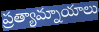
ప్రత్యామ్నాయాలు